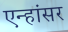
एन्हांसर